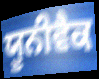
ਯੂਨੀਵੈਕ